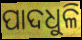
ପାଦଧୁଳି